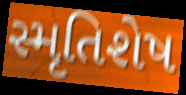
સ્મૃતિશેષ